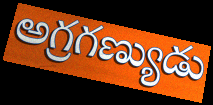
అగ్రగణ్యుడు